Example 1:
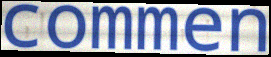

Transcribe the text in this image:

commen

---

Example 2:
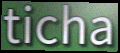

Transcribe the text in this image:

ticha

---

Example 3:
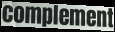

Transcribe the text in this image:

complement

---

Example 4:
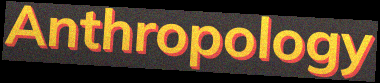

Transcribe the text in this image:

Anthropology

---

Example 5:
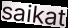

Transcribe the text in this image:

saikat